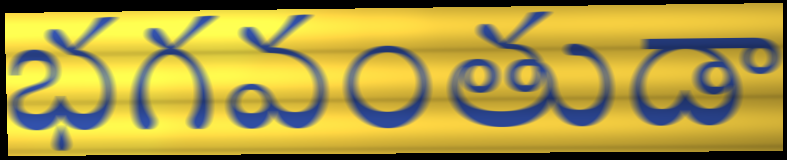
భగవంతుడా